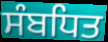
ਸੰਬਧਿਤ